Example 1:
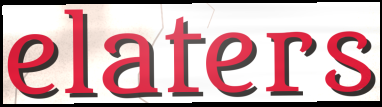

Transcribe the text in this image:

elaters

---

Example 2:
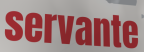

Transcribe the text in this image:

servante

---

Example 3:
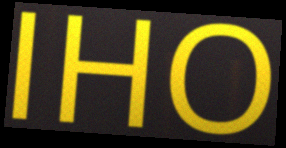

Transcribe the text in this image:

IHO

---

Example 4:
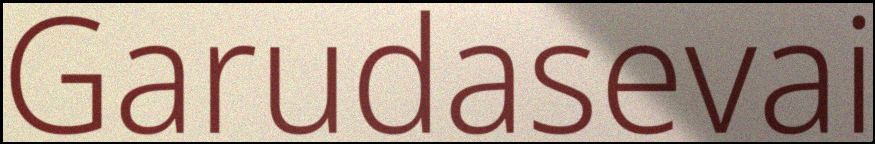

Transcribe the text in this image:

Garudasevai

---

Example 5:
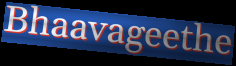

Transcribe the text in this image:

Bhaavageethe